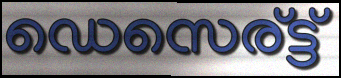
ഡെസെര്ട്ട്